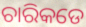
ଚାରିକଡେ